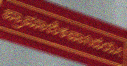
ಪ್ರಾಮಾಣಿಕವಾಗಿದೆಯೇ